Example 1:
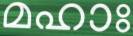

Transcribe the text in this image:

മഹാഃ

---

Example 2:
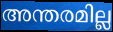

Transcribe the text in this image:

അന്തരമില്ല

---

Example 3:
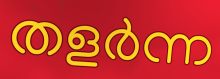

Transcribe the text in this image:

തളർന്ന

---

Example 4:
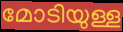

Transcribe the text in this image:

മോടിയുള്ള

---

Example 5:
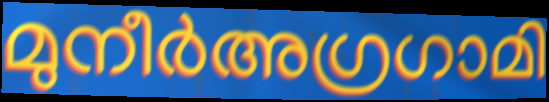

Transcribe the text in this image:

മുനീർഅഗ്രഗാമി